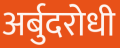
अर्बुदरोधी